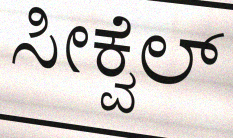
ಸೀಕ್ವೆಲ್